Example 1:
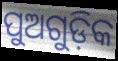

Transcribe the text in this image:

ପୁଅଗୁଡ଼ିକ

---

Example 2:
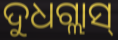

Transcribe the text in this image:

ଦୁଧଗ୍ଲାସ୍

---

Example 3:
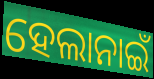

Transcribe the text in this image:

ହେଲାନାଇଁ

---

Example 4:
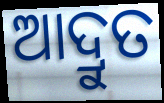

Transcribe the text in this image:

ଆଦ୍ରୁତ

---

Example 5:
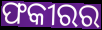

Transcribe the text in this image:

ଫକୀରର